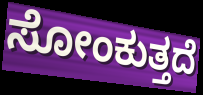
ಸೋಂಕುತ್ತದೆ